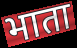
भाता